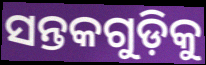
ସନ୍ତକଗୁଡ଼ିକୁ